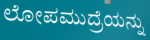
ಲೋಪಮುದ್ರೆಯನ್ನು